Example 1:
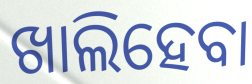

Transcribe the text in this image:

ଖାଲିହେବା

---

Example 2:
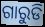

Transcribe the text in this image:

ଗାରୁଡି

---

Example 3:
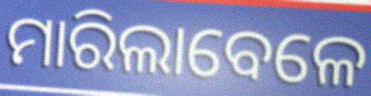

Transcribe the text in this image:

ମାରିଲାବେଳେ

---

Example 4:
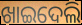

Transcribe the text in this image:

ଖାଇଦେଲି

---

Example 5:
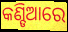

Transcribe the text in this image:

କଣ୍ଡିଆରେ